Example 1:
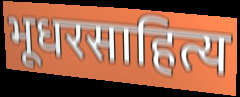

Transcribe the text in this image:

भूधरसाहित्य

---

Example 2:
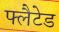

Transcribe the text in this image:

फ्लैटेड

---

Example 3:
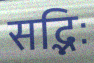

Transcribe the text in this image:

सद्भिः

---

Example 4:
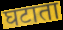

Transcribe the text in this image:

घटाता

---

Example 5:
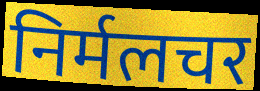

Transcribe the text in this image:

निर्मलचर